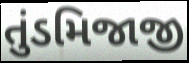
તુંડમિજાજી